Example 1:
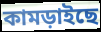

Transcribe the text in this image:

কামড়াইছে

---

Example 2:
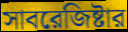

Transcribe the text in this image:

সাবরেজিষ্টার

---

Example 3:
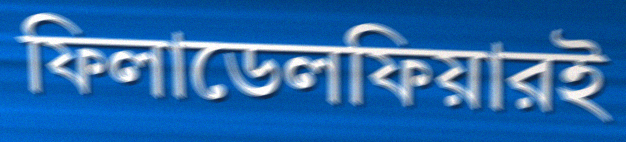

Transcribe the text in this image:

ফিলাডেলফিয়ারই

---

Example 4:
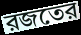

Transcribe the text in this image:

রজতের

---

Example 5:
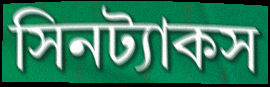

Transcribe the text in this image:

সিনট্যাকস